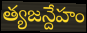
త్యజన్దేహం